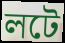
লটে